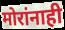
मोरांनाही